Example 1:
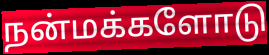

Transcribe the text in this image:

நன்மக்களோடு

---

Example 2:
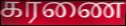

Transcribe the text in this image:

கரணை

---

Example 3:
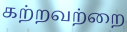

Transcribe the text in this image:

கற்றவற்றை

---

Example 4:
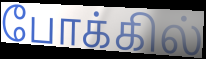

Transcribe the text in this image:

போக்கில்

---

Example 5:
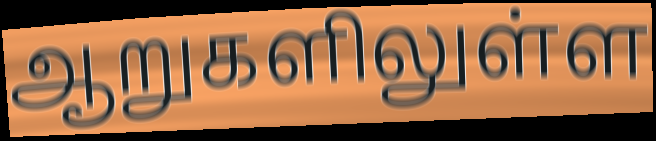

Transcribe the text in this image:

ஆறுகளிலுள்ள